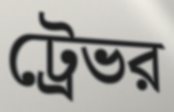
ট্রেভর